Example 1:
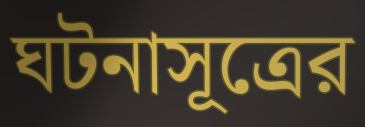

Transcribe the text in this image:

ঘটনাসূত্রের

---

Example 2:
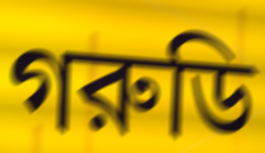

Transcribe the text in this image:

গরুডি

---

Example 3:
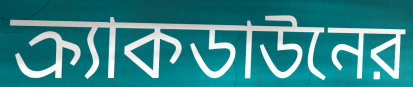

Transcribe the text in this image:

ক্র্যাকডাউনের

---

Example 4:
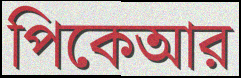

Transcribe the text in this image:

পিকেআর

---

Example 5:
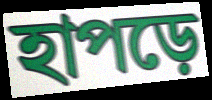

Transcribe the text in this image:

হাপড়ে